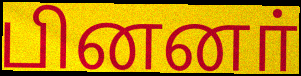
பினனர்